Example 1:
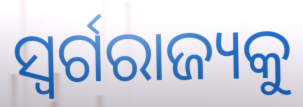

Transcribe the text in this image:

ସ୍ଵର୍ଗରାଜ୍ୟକୁ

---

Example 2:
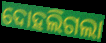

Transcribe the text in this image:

ଦୋହଲିଗଲା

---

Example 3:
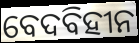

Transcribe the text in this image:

ବେଦବିହୀନ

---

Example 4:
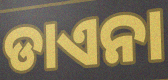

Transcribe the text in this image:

ଡାଏନା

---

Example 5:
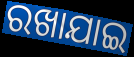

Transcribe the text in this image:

ରଖାଯାଇ